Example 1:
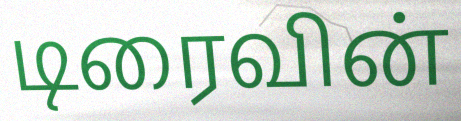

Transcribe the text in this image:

டிரைவின்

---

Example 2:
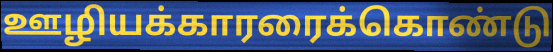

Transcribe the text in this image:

ஊழியக்காரரைக்கொண்டு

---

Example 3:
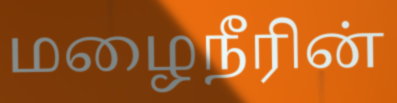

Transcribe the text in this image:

மழைநீரின்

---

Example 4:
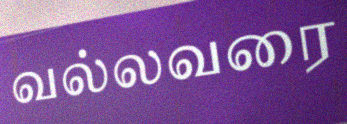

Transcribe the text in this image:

வல்லவரை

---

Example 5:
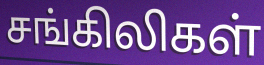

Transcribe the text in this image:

சங்கிலிகள்